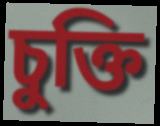
চুক্তি